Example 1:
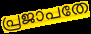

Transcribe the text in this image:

പ്രജാപതേ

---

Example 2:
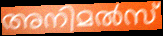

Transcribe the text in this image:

അനിമൽസ്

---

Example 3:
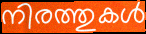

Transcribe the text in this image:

നിരത്തുകൾ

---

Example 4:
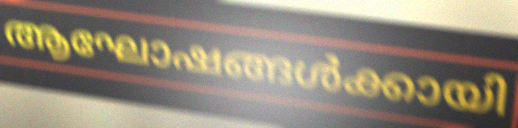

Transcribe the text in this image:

ആഘോഷങ്ങൾക്കായി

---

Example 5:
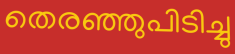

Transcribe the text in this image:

തെരഞ്ഞുപിടിച്ചു